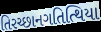
તિરચ્છાનગતિત્થિયા